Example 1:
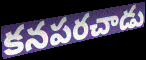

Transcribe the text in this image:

కనపరచాడు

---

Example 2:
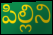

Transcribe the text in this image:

పిల్లిని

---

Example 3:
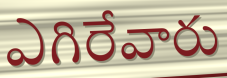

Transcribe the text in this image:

ఎగిరేవారు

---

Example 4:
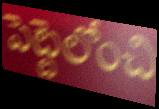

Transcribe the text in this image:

పెట్టెలోంచి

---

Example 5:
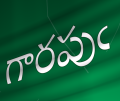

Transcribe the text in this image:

గారపుఁ